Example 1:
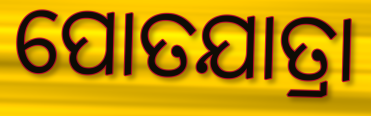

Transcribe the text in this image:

ପୋତଯାତ୍ରା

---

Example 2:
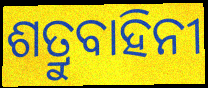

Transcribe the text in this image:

ଶତ୍ରୁବାହିନୀ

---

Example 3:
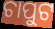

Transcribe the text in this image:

ଚାପୁଟ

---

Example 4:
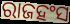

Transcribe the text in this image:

ରାଜହଂସ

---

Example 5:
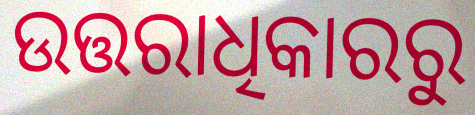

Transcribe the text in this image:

ଉତ୍ତରାଧିକାରରୁ